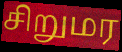
சிறுமர